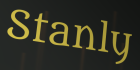
Stanly